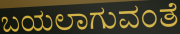
ಬಯಲಾಗುವಂತೆ